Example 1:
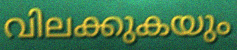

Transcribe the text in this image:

വിലക്കുകയും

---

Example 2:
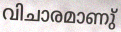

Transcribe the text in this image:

വിചാരമാണു്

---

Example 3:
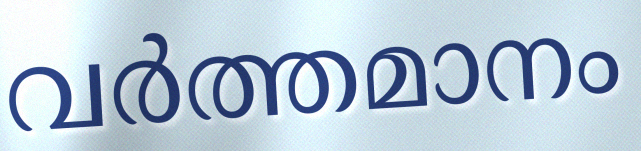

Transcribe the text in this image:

വർത്തമാനം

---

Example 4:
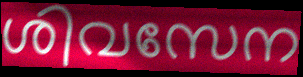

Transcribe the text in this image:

ശിവസേന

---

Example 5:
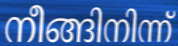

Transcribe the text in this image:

നീങ്ങിനിന്ന്